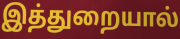
இத்துறையால்